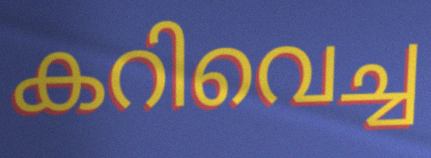
കറിവെച്ച